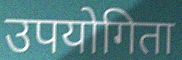
उपयोगिता